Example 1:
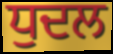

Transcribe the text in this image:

ਧੁਦਲ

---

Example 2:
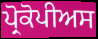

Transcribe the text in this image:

ਪ੍ਰੋਕੋਪੀਅਸ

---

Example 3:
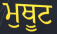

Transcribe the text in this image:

ਮੁਥੂਟ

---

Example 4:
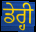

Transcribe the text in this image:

ਡੇਰ੍ਹੀ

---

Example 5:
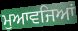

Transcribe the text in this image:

ਮੁਆਵਜਿਆਂ